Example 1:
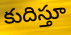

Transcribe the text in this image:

కుదిస్తూ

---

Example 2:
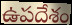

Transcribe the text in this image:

ఉపదేశం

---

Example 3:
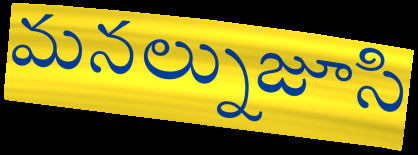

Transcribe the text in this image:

మనల్నుజూసి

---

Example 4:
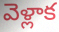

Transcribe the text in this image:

వెళ్లాక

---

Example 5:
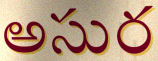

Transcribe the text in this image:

అసుర